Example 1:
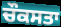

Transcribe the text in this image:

ਚੌਕਸਤਾ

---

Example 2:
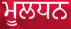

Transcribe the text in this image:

ਮੂਲਧਨ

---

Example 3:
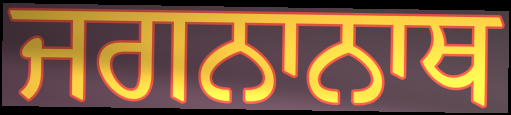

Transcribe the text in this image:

ਜਗਨਾਨਾਥ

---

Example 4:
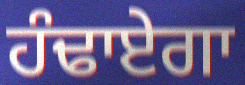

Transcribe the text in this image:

ਹੰਢਾਏਗਾ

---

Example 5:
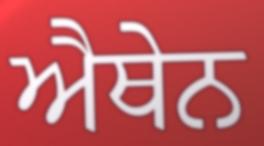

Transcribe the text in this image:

ਐਥੇਨ